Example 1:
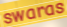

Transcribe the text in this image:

swaras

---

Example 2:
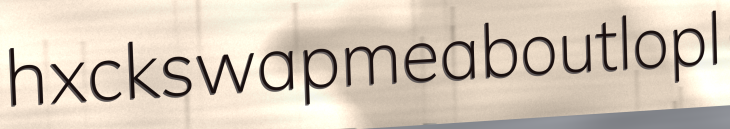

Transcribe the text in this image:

hxckswapmeaboutlopl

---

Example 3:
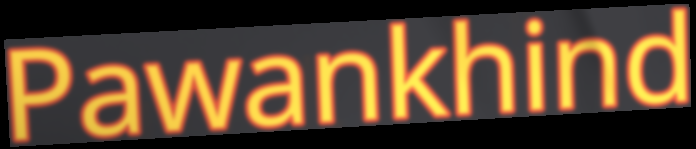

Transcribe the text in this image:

Pawankhind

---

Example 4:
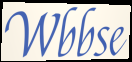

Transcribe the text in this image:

Wbbse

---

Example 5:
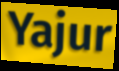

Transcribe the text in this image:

Yajur